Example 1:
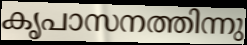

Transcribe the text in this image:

കൃപാസനത്തിന്നു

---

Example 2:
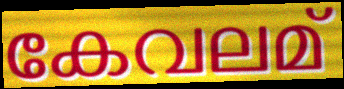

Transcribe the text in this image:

കേവലമ്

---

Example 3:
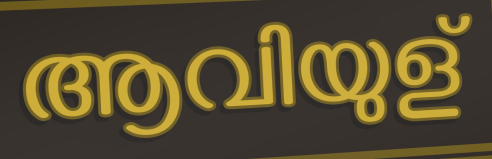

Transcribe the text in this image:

ആവിയുള്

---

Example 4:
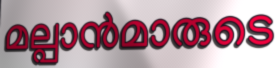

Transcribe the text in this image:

മല്പാൻമാരുടെ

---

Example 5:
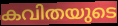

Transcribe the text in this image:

കവിതയുടെ